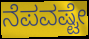
ನೆಪವಷ್ಟೇ